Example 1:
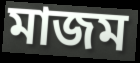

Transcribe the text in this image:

মাজম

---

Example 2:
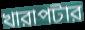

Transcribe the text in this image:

খারাপটার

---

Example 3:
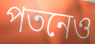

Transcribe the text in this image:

পতনেও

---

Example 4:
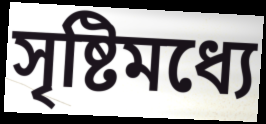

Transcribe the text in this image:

সৃষ্টিমধ্যে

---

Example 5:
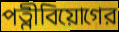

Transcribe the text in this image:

পত্নীবিয়োগের